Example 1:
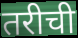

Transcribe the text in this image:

तरीची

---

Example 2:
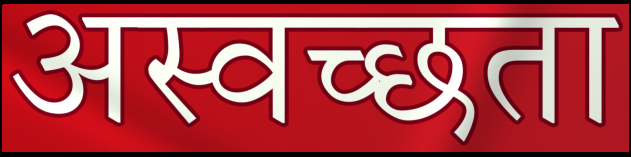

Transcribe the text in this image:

अस्वच्छता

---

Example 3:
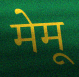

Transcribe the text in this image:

मेमू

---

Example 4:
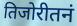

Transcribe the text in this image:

तिजोरीतनं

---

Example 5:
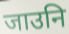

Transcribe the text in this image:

जाउनि